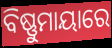
ବିଷ୍ଣୁମାୟାରେ